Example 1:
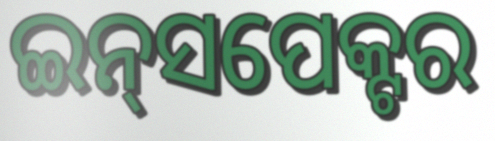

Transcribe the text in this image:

ଇନ୍‌ସପେକ୍ଟର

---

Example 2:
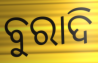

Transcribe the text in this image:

ବୁରାଦି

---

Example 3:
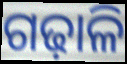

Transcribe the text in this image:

ଗଢ଼ାଳି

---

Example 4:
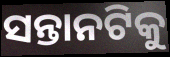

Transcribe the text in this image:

ସନ୍ତାନଟିକୁ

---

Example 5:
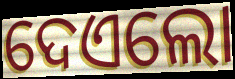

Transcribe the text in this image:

ଦେଏଲୋ